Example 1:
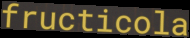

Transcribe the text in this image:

fructicola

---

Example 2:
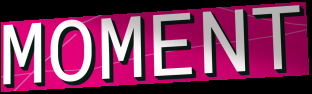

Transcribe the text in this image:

MOMENT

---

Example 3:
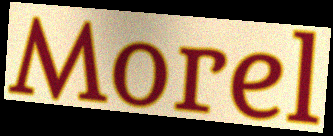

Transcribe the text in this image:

Morel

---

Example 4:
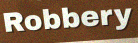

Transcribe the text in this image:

Robbery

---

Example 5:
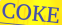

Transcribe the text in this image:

COKE